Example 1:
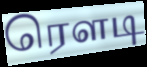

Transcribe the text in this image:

ரெளடி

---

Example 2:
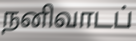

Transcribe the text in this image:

நனிவாடப்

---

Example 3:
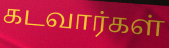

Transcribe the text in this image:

கடவார்கள்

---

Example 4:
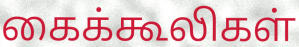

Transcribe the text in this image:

கைக்கூலிகள்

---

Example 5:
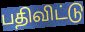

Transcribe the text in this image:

பதிவிட்டு